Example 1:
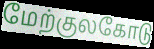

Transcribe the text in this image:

மேற்குலகோடு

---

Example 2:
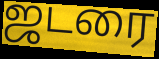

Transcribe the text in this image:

ஜடரை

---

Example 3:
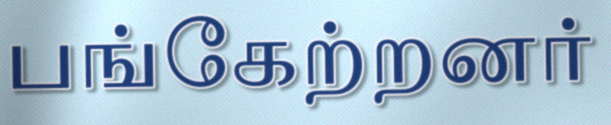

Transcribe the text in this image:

பங்கேற்றனர்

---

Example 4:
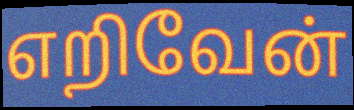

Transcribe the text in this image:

எறிவேன்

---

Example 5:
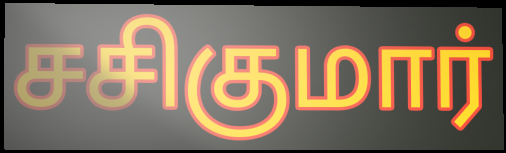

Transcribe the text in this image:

சசிகுமார்